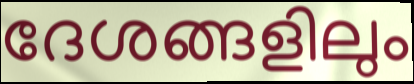
ദേശങ്ങളിലും